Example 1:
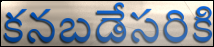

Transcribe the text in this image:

కనబడేసరికి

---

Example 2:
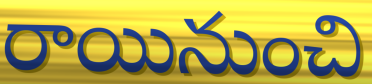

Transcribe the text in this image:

రాయినుంచి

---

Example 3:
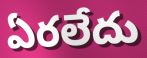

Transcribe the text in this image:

ఏరలేదు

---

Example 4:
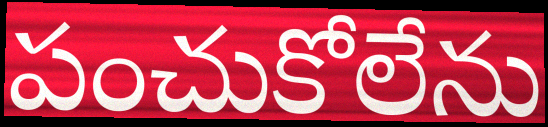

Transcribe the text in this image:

పంచుకోలేను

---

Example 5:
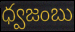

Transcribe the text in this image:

ధ్వజంబు